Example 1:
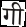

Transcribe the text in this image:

गी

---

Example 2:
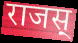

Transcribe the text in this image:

राजस्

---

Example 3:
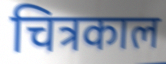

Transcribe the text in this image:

चित्रकाल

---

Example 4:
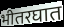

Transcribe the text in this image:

भीतरघात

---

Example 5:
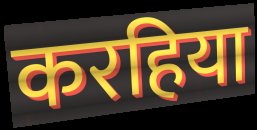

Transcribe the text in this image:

करहिया